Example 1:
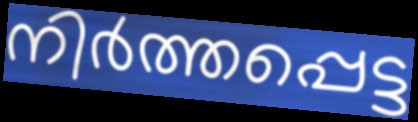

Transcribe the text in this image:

നിർത്തപ്പെട്ട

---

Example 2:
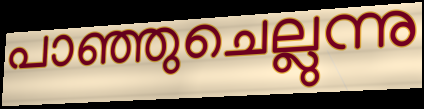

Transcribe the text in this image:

പാഞ്ഞുചെല്ലുന്നു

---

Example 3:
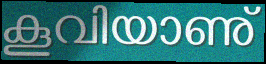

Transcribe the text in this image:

കൂവിയാണു്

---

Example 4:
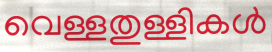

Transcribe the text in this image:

വെള്ളതുള്ളികൾ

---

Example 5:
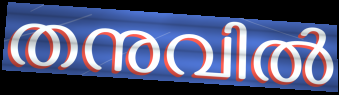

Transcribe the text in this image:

തനുവിൽ